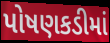
પોષણકડીમાં